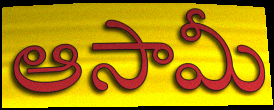
ఆసామీ